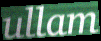
ullam